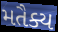
મતૈક્ય